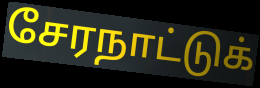
சேரநாட்டுக்